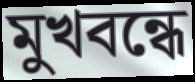
মুখবন্ধে